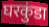
घरकुंडा